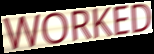
WORKED